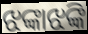
ଝଙ୍କାଝଙ୍କି